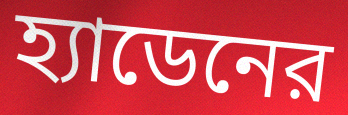
হ্যাডেনের